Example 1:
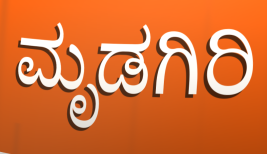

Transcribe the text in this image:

ಮೃಡಗಿರಿ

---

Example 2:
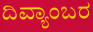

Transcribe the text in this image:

ದಿವ್ಯಾಂಬರ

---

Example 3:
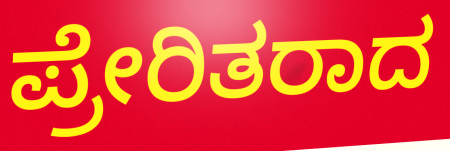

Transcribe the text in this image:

ಪ್ರೇರಿತರಾದ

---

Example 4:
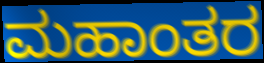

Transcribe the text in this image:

ಮಹಾಂತರ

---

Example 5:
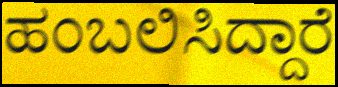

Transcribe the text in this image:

ಹಂಬಲಿಸಿದ್ದಾರೆ